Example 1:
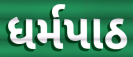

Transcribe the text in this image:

ધર્મપાઠ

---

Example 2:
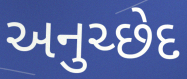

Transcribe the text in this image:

અનુચ્છેદ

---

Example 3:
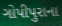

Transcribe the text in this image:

ગોપીપુરાના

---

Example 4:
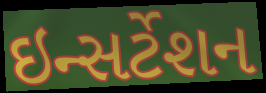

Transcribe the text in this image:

ઇન્સર્ટેશન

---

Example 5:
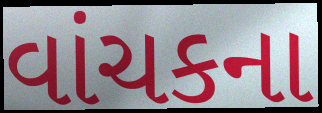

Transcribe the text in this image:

વાંચકના